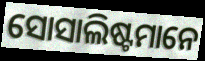
ସୋସାଲିଷ୍ଟମାନେ